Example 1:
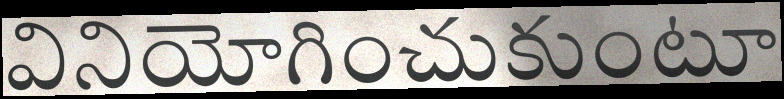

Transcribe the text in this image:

వినియోగించుకుంటూ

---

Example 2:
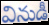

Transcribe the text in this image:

వినుడీ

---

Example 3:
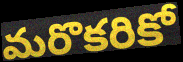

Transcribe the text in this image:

మరొకరికో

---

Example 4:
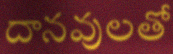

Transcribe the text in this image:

దానవులతో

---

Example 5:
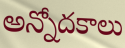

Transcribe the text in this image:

అన్నోదకాలు